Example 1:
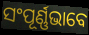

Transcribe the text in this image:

ସଂପୂର୍ଣ୍ଣଭାବେ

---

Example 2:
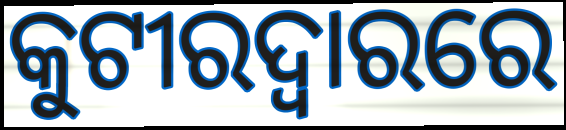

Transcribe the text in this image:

କୁଟୀରଦ୍ୱାରରେ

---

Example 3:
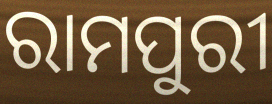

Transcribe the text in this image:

ରାମପୁରୀ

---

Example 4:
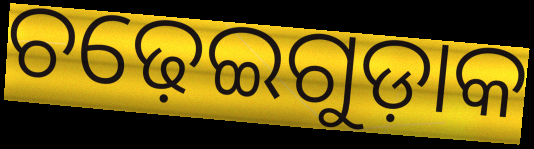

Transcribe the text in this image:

ଚଢ଼େଇଗୁଡ଼ାକ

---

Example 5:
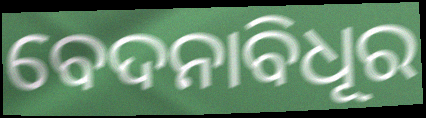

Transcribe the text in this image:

ବେଦନାବିଧୂର